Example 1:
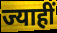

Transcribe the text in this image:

ज्याहीं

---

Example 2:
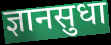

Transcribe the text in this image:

ज्ञानसुधा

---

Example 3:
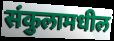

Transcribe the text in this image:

संकुलामधील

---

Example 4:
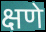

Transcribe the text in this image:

क्षणे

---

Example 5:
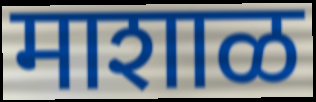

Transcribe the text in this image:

माशाळ